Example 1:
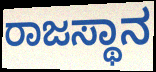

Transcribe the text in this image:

ರಾಜಸ್ಥಾನ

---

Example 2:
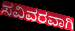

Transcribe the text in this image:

ಸವಿವರವಾಗಿ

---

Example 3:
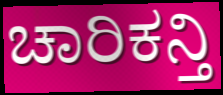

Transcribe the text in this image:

ಚಾರಿಕನ್ತಿ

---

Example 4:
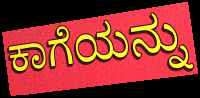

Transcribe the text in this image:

ಕಾಗೆಯನ್ನು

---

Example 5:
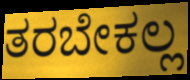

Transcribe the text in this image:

ತರಬೇಕಲ್ಲ